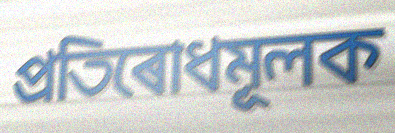
প্ৰতিৰোধমূলক